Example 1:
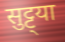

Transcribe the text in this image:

सुट्ट्या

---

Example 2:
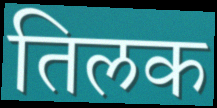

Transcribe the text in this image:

तिलक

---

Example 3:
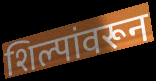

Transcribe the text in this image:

शिल्पांवरून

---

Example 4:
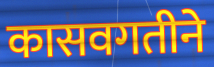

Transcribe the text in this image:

कासवगतीने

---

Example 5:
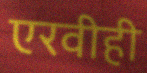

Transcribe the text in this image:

एरवीही